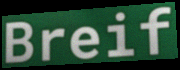
Breif